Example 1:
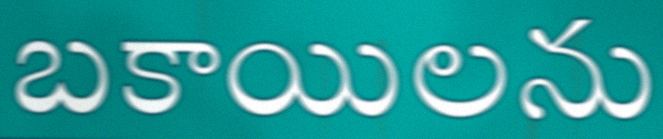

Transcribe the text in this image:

బకాయిలను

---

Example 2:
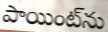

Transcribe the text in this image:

పాయింట్‌ను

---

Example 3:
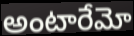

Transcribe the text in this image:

అంటారేమో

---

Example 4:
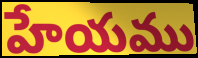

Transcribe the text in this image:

హేయము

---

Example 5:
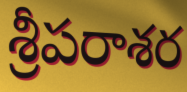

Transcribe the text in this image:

శ్రీపరాశర